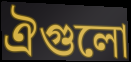
ঐগুলো